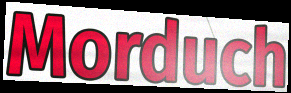
Morduch